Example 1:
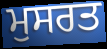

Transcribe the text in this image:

ਮੁਸਰਤ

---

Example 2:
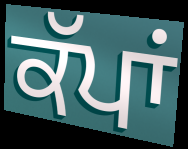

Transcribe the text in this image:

ਕੱਪਾਂ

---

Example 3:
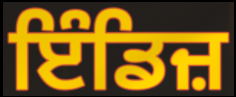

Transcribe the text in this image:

ਇੰਡਿਜ਼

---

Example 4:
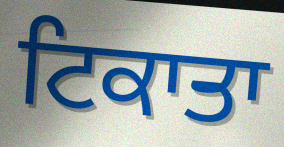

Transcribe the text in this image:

ਟਿਕਾਤਾ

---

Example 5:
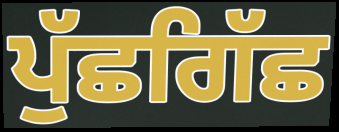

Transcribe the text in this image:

ਪੁੱਛਗਿੱਛ